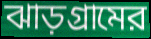
ঝাড়গ্রামের